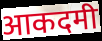
आकदमी